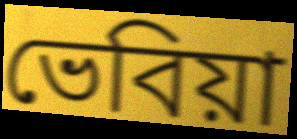
ভেবিয়া